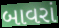
બાવરાં